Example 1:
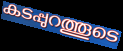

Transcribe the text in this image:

കടപ്പുറത്തൂടെ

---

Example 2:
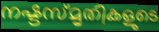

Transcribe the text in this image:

നഷ്ടസ്മൃതികളുടെ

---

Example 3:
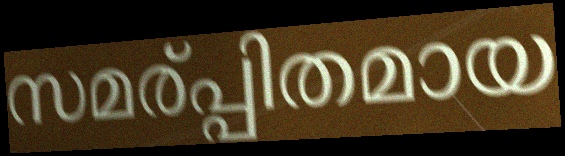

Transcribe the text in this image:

സമര്പ്പിതമായ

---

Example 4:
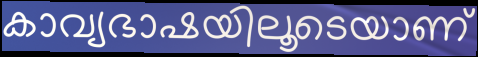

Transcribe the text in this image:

കാവ്യഭാഷയിലൂടെയാണ്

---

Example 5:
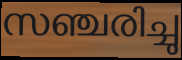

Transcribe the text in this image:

സഞ്ചരിച്ചു